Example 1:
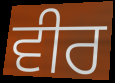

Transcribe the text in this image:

ਵੀਰ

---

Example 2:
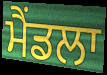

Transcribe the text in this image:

ਮੈਂਡਲਾ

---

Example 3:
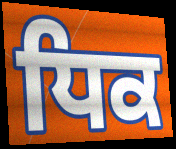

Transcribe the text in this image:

ਧਿਕ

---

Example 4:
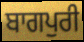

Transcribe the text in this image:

ਬਾਗਪੁਰੀ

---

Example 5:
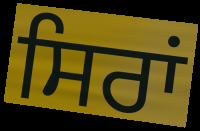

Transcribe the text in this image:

ਸਿਰਾਂ